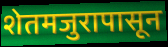
शेतमजुरापासून